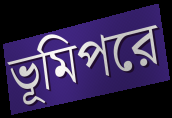
ভূমিপরে